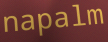
napalm